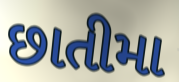
છાતીમા